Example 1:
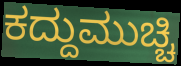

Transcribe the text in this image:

ಕದ್ದುಮುಚ್ಚಿ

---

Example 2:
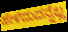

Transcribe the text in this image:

ಹೇಳಿದುದನ್ನೆಲ್ಲ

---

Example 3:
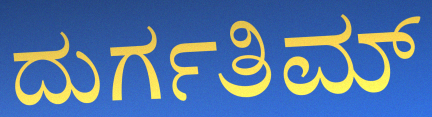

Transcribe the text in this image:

ದುರ್ಗತಿಮ್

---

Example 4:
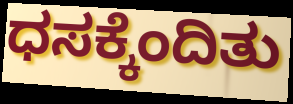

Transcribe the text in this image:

ಧಸಕ್ಕೆಂದಿತು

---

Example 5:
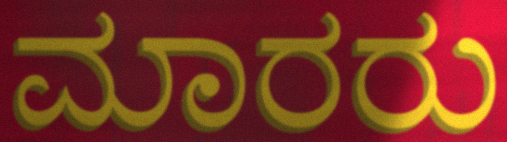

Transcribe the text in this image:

ಮಾರರು